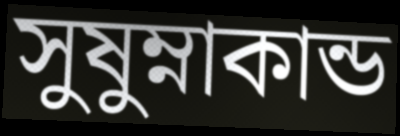
সুষুম্নাকান্ড